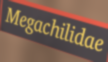
Megachilidae